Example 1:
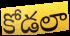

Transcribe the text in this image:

కోడలా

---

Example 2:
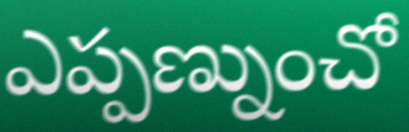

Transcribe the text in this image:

ఎప్పణ్నుంచో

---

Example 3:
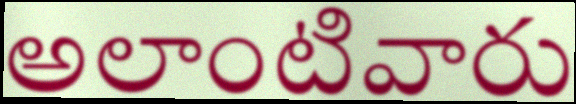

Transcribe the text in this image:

అలాంటివారు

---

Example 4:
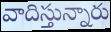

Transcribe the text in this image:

వాదిస్తున్నారు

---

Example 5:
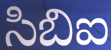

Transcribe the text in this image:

సిబిఐ